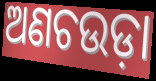
ଅଣଚଉଡ଼ା